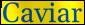
Caviar